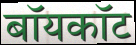
बॉयकॉट